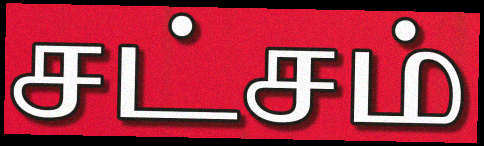
சட்சம்